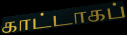
காட்டாகப்